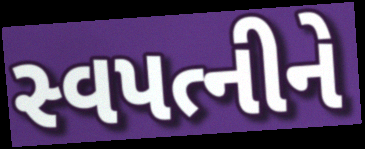
સ્વપત્નીને